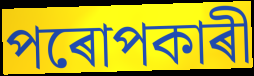
পৰোপকাৰী